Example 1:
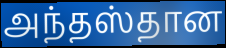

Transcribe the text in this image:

அந்தஸ்தான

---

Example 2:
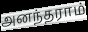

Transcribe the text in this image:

அனந்தராம்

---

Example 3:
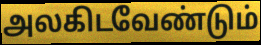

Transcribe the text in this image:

அலகிடவேண்டும்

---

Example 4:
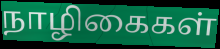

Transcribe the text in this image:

நாழிகைகள்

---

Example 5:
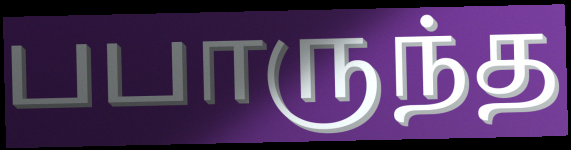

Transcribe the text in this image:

பபாருந்த